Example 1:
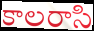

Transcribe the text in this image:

కాలరాసి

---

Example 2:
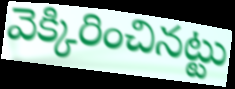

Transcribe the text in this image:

వెక్కిరించినట్టు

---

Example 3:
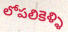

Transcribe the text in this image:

లోపలికెళ్ళి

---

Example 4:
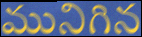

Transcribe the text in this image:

మునిగిన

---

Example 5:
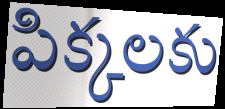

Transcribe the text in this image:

పిక్కలకు